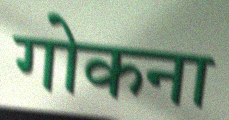
गोकना